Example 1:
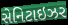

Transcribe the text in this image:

સેનિટાઇઝર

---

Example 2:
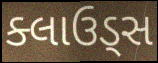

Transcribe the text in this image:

ક્લાઉડ્સ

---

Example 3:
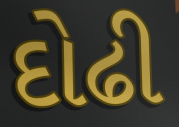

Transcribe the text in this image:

દોઢી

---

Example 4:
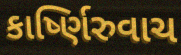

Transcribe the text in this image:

કાર્ષ્ણિરુવાચ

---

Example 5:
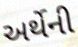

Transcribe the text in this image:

અર્થેની